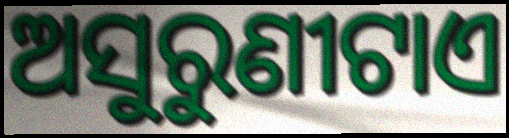
ଅସୁରୁଣୀଟାଏ